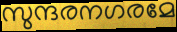
സുന്ദരനഗരമേ